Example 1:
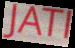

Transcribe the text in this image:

JATI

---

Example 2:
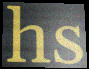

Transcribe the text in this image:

hs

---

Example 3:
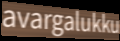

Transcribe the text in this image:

avargalukku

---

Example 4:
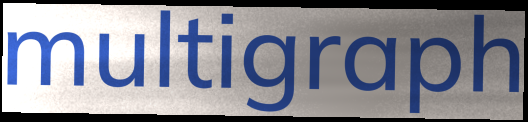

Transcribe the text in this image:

multigraph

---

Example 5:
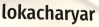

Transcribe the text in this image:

lokacharyar